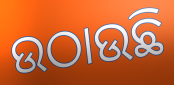
ଉଠାଉଛି